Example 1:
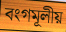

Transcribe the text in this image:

বংগমূলীয়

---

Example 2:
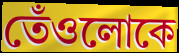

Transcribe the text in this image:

তেঁওলোকে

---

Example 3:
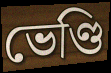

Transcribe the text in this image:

ভেণ্ডি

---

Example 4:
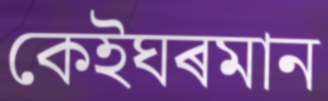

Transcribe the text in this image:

কেইঘৰমান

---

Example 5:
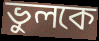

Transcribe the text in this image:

ভুলকে